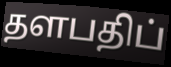
தளபதிப்